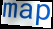
map